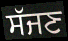
ਸੱਜਣ